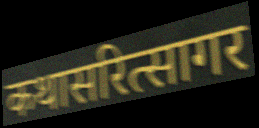
कथासरित्सागर